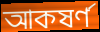
আকষৰ্ণ